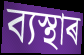
ব্যস্থাৰ